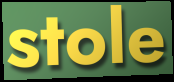
stole